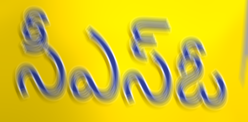
సీఎస్ఓ